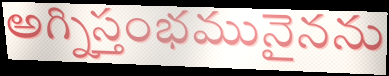
అగ్నిస్తంభమునైనను